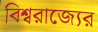
বিশ্বরাজ্যের